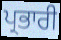
ਪ੍ਰਭਾਰੀ